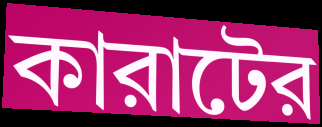
কারাটের